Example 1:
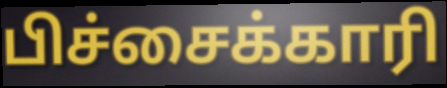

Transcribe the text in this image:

பிச்சைக்காரி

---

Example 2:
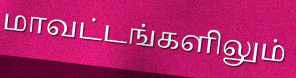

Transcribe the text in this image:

மாவட்டங்களிலும்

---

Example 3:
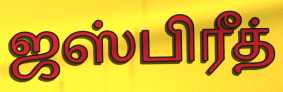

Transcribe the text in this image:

ஜஸ்பிரீத்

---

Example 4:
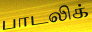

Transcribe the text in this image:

பாடலிக்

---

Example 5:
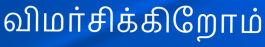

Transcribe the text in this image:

விமர்சிக்கிறோம்